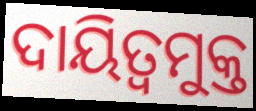
ଦାୟିତ୍ବମୁକ୍ତ